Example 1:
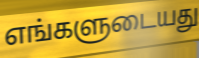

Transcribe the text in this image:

எங்களுடையது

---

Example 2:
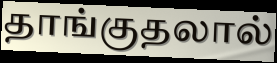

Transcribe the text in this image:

தாங்குதலால்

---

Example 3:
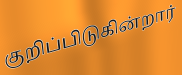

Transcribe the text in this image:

குறிப்பிடுகின்றார்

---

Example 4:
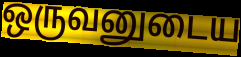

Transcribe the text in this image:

ஒருவனுடைய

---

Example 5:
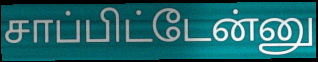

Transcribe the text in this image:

சாப்பிட்டேன்னு